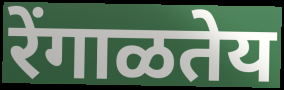
रेंगाळतेय